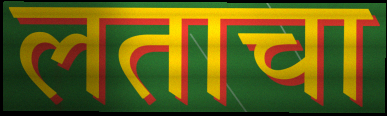
लताचा